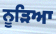
ਨੂੜਿਆ